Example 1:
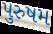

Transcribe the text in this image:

પુરુષમ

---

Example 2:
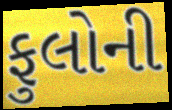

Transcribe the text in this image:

ફુલોની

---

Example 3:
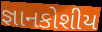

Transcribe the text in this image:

જ્ઞાનકોશીય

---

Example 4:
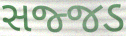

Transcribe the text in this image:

સજ્જડ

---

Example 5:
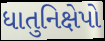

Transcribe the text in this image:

ધાતુનિક્ષેપો